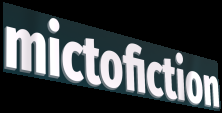
mictofiction